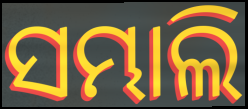
ସମ୍ଭାଲି